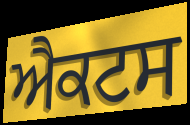
ਐਕਟਸ